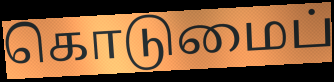
கொடுமைப்